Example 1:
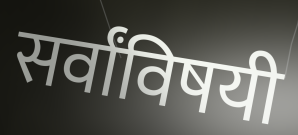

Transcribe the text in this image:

सर्वांविषयी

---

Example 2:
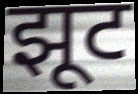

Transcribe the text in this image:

झूट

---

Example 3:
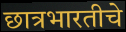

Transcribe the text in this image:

छात्रभारतीचे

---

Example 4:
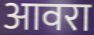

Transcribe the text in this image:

आवरा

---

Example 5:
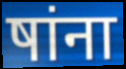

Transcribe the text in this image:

षांना